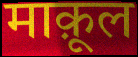
माक़ूल